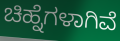
ಚಿಹ್ನೆಗಳಾಗಿವೆ